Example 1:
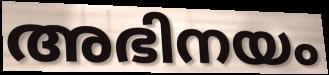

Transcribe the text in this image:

അഭിനയം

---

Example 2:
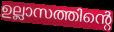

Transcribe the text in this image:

ഉല്ലാസത്തിന്റെ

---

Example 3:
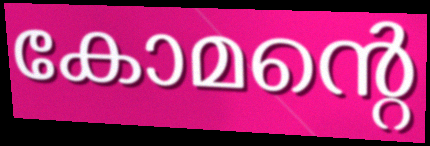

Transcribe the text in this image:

കോമന്റെ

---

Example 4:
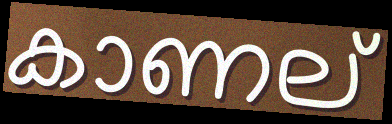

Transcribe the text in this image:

കാണല്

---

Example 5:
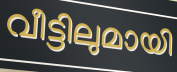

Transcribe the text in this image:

വീട്ടിലുമായി